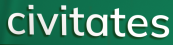
civitates